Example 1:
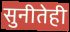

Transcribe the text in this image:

सुनीतेही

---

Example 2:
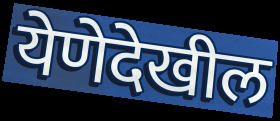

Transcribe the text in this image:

येणेदेखील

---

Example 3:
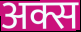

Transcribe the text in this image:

अक्स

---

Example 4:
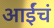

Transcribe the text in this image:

आईंचं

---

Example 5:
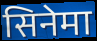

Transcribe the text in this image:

सिनेमा